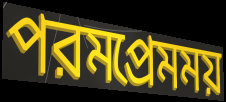
পরমপ্রেমময়